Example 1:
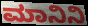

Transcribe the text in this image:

ಮಾನಿನಿ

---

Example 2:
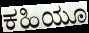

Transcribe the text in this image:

ಕಹಿಯೂ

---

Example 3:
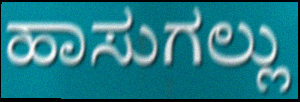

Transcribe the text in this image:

ಹಾಸುಗಲ್ಲು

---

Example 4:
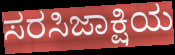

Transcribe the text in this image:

ಸರಸಿಜಾಕ್ಷಿಯ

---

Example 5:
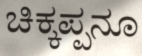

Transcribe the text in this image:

ಚಿಕ್ಕಪ್ಪನೂ